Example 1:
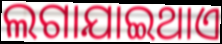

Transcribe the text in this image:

ଲଗାଯାଇଥାଏ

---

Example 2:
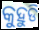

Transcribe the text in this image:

କୁହୁଡି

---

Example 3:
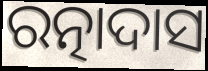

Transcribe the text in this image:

ରତ୍ନାଦାସ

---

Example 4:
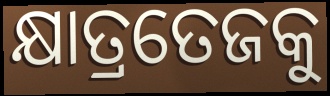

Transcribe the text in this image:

କ୍ଷାତ୍ରତେଜକୁ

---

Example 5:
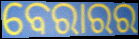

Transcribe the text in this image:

ବେରାରର